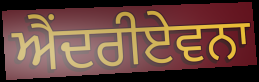
ਐਂਦਰੀਏਵਨਾ